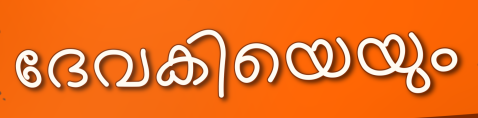
ദേവകിയെയും